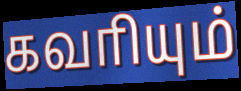
கவரியும்